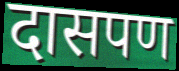
दासपण